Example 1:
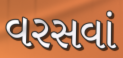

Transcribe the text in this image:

વરસવાં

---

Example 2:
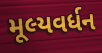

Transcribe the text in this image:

મૂલ્યવર્ધન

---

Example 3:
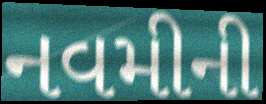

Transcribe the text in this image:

નવમીની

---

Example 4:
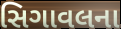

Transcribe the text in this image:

સિગાવલના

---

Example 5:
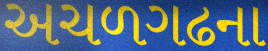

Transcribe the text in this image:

અચળગઢના